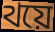
থয়ে